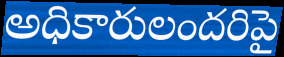
అధికారులందరిపై